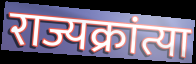
राज्यक्रांत्या